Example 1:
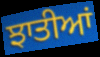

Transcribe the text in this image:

ਝਾਤੀਆਂ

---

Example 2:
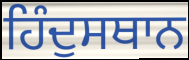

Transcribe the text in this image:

ਹਿੰਦੁਸਥਾਨ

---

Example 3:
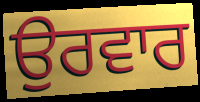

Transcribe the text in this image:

ਉਰਵਾਰ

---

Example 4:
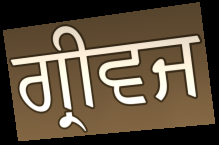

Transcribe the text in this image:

ਗ੍ਰੀਵਜ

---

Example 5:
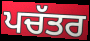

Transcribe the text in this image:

ਪਚੱਤਰ